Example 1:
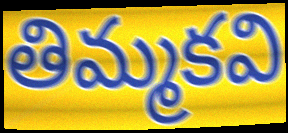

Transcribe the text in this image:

తిమ్మకవి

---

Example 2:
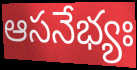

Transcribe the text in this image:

ఆసనేభ్యః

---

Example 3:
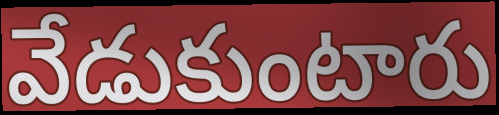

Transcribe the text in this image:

వేడుకుంటారు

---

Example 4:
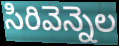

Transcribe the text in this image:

సిరివెన్నెల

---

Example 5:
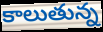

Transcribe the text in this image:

కాలుతున్న